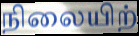
நிலையிற்